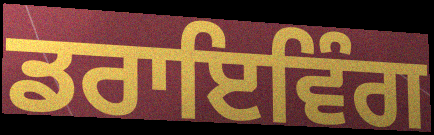
ਡਰਾਇਵਿੰਗ